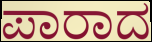
ಪಾರಾದ